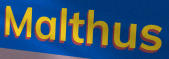
Malthus